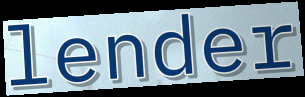
lender